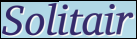
Solitair